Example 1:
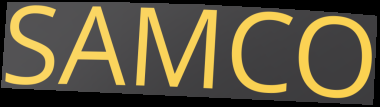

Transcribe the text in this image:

SAMCO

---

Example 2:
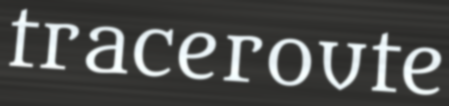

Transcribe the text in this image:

traceroute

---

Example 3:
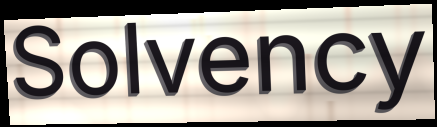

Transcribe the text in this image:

Solvency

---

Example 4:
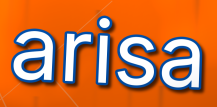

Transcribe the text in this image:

arisa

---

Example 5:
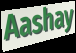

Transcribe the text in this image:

Aashay